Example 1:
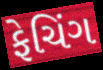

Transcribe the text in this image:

ફેચિંગ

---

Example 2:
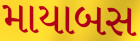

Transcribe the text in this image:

માયાબસ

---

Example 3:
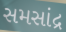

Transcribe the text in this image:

સમસાંદ્ર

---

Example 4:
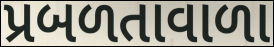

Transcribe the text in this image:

પ્રબળતાવાળા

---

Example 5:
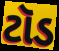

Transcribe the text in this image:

ટૉડ